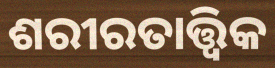
ଶରୀରତାତ୍ତ୍ଵିକ